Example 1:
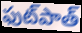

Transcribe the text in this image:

ఫుట్‌పాత్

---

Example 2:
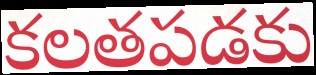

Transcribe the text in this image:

కలతపడకు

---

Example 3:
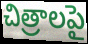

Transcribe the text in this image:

చిత్రాలపై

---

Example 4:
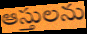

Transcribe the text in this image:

ఆస్తులను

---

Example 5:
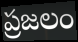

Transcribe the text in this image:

ప్రజలం